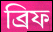
ব্রিফ